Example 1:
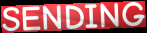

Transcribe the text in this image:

SENDING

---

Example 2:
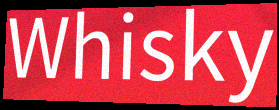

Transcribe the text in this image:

Whisky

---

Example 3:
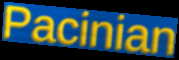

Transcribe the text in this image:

Pacinian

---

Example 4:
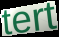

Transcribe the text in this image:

tert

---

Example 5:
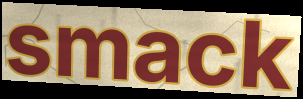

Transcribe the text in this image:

smack